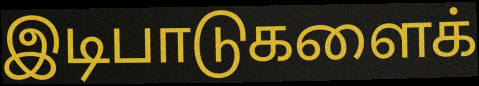
இடிபாடுகளைக்